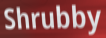
Shrubby